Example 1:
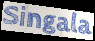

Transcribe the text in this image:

Singala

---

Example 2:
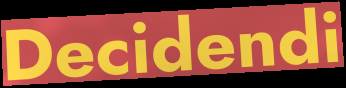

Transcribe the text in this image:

Decidendi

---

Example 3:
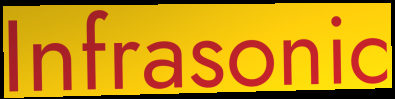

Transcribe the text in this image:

Infrasonic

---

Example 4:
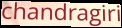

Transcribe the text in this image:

chandragiri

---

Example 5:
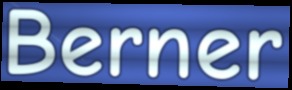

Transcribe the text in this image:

Berner